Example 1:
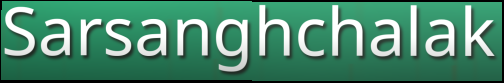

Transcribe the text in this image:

Sarsanghchalak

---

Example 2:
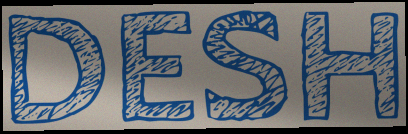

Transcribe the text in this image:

DESH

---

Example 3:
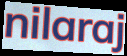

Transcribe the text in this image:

nilaraj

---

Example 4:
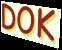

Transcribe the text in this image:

DOK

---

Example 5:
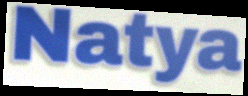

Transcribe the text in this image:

Natya